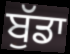
ਬੁੱਡਾ